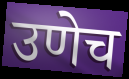
उणेच